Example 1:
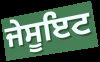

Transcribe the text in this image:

ਜੇਸੂਇਟ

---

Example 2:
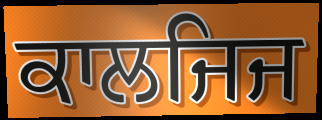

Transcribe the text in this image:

ਕਾਲਜਿਜ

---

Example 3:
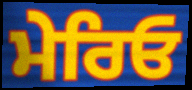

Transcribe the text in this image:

ਮੇਰਿਓ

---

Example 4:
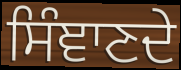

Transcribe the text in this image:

ਸਿੰਞਾਣਦੇ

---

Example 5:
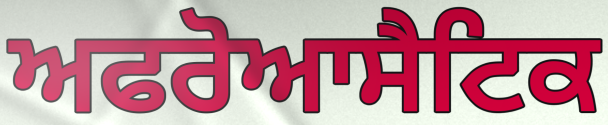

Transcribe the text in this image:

ਅਫਰੋਆਸੈਟਿਕ